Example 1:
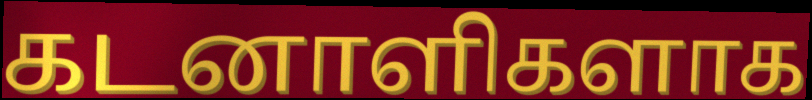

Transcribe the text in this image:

கடனாளிகளாக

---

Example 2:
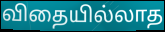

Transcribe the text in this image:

விதையில்லாத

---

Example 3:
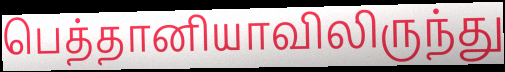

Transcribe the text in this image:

பெத்தானியாவிலிருந்து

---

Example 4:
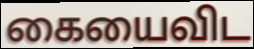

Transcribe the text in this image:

கையைவிட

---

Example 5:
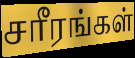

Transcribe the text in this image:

சரீரங்கள்